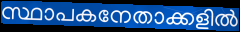
സ്ഥാപകനേതാക്കളിൽ